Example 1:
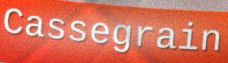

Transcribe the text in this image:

Cassegrain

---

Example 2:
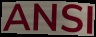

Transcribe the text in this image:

ANSI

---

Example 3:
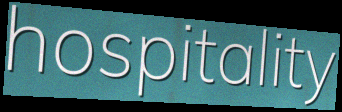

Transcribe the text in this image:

hospitality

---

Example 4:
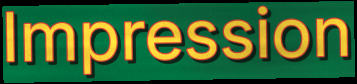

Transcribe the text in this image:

Impression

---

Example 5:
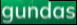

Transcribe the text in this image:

gundas